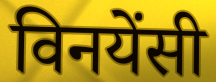
विनयेंसी